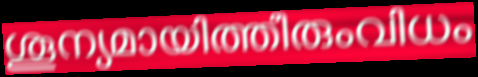
ശൂന്യമായിത്തീരുംവിധം